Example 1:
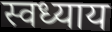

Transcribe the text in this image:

स्वध्याय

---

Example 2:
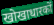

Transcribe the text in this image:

खोखाधारकों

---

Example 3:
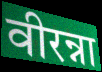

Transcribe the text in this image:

वीरन्ना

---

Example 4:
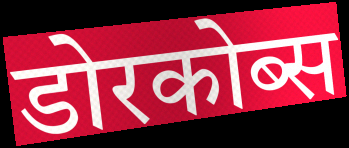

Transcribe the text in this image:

डोरकोब्स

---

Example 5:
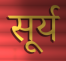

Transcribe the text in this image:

सूर्य